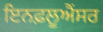
ਇਨਫ਼ਲੂਐਂਸਰ